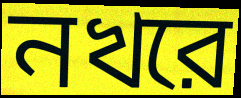
নখরে